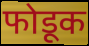
फोडूक